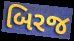
બિરજ